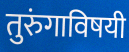
तुरुंगाविषयी